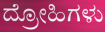
ದ್ರೋಹಿಗಳು